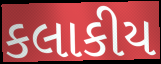
કલાકીય